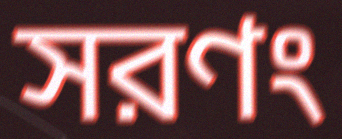
সরণং